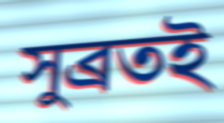
সুব্ৰতই